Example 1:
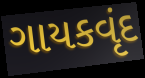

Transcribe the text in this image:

ગાયકવૃંદ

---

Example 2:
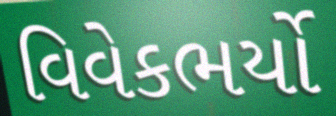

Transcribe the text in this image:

વિવેકભર્યો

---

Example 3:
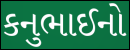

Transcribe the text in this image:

કનુભાઈનો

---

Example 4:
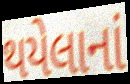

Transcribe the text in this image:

થયેલાનાં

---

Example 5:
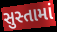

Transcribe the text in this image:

સુસ્તામાં